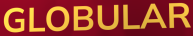
GLOBULAR